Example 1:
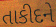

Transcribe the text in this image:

તાકીદને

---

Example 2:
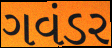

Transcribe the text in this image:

ગવંડર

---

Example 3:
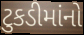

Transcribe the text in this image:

ટુકડીમાંનો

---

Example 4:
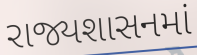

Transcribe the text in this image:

રાજ્યશાસનમાં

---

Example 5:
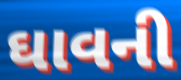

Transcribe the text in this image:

ઘાવની